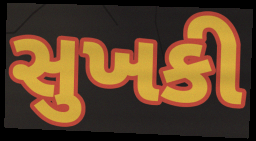
સુખકી